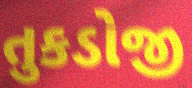
તુકડોજી